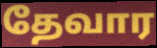
தேவார